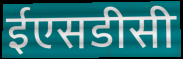
ईएसडीसी